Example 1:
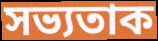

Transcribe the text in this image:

সভ্যতাক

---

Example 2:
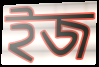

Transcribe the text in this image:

ইজ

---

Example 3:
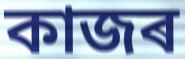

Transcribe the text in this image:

কাজৰ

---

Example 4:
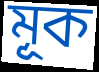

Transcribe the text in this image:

মূক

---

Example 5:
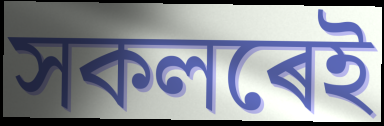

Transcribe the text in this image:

সকলৰেই